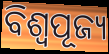
ବିଶ୍ୱପୂଜ୍ୟ